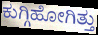
ಕುಗ್ಗಿಹೋಗಿತ್ತು